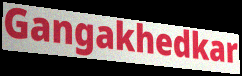
Gangakhedkar